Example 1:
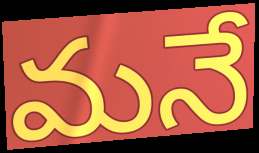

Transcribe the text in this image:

మనే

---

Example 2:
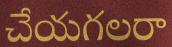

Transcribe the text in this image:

చేయగలరా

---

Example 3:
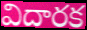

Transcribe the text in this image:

విదారక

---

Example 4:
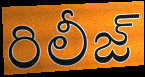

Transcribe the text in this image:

రిలీజ్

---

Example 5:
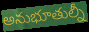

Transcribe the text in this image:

అనుభూతుల్నీ